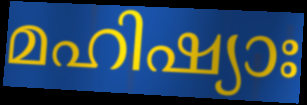
മഹിഷ്യാഃ